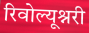
रिवोल्यूश्नरी